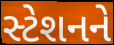
સ્ટેશનને